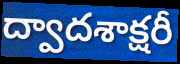
ద్వాదశాక్షరీ